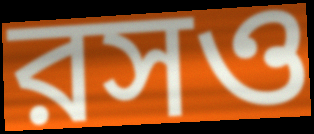
রসও